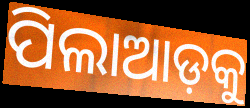
ପିଲାଆଡ଼କୁ